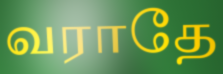
வராதே